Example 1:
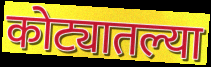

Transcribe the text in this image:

कोट्यातल्या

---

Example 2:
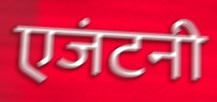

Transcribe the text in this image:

एजंटनी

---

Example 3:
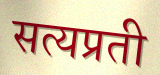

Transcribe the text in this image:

सत्यप्रती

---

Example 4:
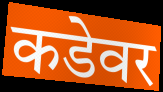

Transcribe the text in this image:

कडेवर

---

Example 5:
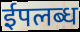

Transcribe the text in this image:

ईपलब्ध